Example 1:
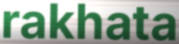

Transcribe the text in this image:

rakhata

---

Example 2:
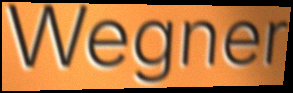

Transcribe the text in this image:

Wegner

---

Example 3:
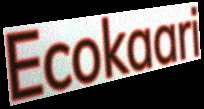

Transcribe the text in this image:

Ecokaari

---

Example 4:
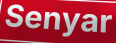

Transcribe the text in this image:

Senyar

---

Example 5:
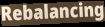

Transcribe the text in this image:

Rebalancing